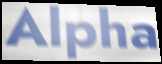
Alpha